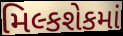
મિલ્કશેકમાં